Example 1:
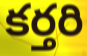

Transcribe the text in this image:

కర్తరి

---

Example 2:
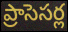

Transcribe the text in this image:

ప్రాసెసర్ల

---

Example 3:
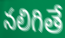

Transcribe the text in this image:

నలిగితే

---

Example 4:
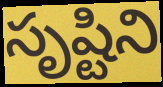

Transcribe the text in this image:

సృష్టిని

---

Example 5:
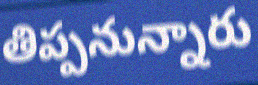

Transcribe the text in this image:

తిప్పనున్నారు